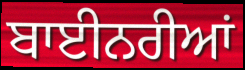
ਬਾਈਨਰੀਆਂ